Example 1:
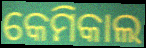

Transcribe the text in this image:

କେମିକାଲ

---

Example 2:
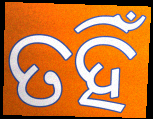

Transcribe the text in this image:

ତହିଁ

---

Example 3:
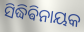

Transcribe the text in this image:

ସିଦ୍ଧିଵିନାୟକ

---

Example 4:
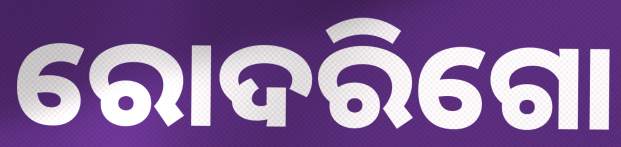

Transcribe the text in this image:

ରୋଦରିଗୋ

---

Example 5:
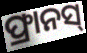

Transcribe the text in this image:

ଫ୍ରାନସ୍